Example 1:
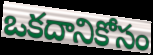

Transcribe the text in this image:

ఒకదానికోసం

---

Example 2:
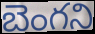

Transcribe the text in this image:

బెంగని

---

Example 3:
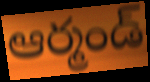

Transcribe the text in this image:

ఆర్మండ్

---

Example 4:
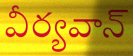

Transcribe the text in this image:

వీర్యవాన్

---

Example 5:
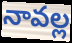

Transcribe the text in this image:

నావల్ల